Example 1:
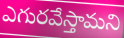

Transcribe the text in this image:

ఎగురవేస్తామని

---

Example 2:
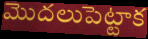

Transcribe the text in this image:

మొదలుపెట్టాక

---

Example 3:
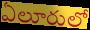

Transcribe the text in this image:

ఏలూరులో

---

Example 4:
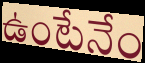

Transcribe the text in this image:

ఉంటేనేం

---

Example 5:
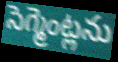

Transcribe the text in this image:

సెగ్మెంట్లను